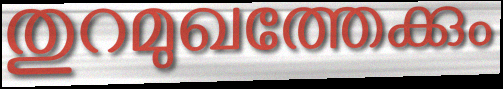
തുറമുഖത്തേക്കും